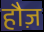
हौज़